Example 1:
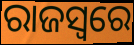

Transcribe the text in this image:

ରାଜସ୍ବରେ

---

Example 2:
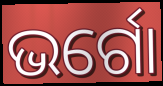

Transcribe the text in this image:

ଭର୍ଗୋ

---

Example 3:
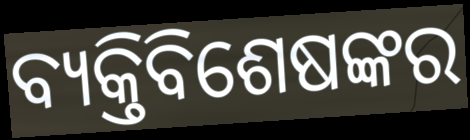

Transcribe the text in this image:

ବ୍ୟକ୍ତିବିଶେଷଙ୍କର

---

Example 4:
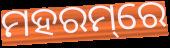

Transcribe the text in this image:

ମହରମ୍‌ରେ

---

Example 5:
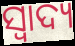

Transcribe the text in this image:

ସ୍ଵାଦ୍ୟ